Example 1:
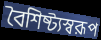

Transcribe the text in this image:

বৈশিষ্ট্যস্বরূপ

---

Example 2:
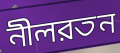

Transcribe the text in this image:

নীলরতন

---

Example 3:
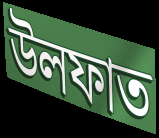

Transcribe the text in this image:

উলফাত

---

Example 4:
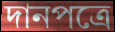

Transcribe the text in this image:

দানপত্রে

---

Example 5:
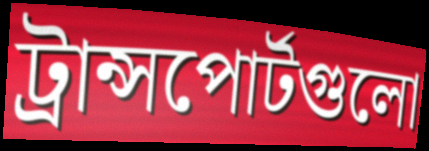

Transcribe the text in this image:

ট্রান্সপোর্টগুলো